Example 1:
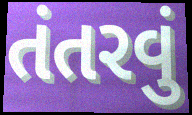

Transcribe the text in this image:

તંતરવું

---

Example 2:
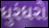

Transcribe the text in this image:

ધુરંધરો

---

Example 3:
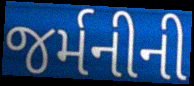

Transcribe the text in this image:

જર્મનીની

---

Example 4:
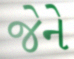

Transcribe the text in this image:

જેને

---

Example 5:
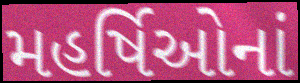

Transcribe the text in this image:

મહર્ષિઓનાં